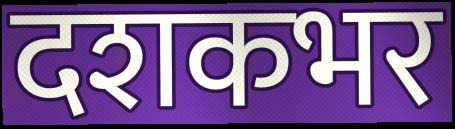
दशकभर